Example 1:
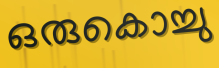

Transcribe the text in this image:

ഒരുകൊച്ചു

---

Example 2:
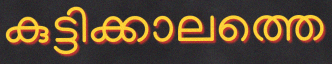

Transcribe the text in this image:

കുട്ടിക്കാലത്തെ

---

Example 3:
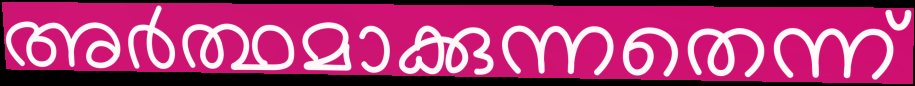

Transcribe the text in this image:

അർത്ഥമാക്കുന്നതെന്ന്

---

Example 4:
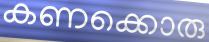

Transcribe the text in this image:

കണക്കൊരു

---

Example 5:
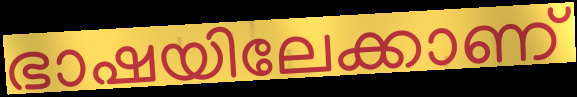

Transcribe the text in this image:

ഭാഷയിലേക്കാണ്